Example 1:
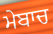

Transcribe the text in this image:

ਮੇਬਾਚ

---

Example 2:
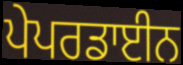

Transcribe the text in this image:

ਪੇਪਰਡਾਈਨ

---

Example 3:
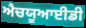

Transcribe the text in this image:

ਐਚਯੂਆਈਡੀ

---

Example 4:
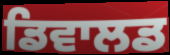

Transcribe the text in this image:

ਡਿਵਾਲਡ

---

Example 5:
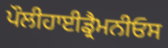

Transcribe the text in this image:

ਪੌਲੀਹਾਈਡ੍ਰੈਮਨੀਓਸ